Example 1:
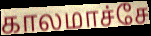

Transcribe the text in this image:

காலமாச்சே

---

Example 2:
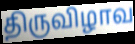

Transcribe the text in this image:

திருவிழாவ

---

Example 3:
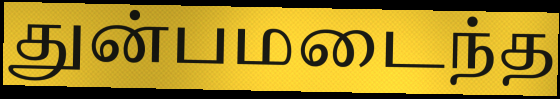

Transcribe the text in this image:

துன்பமடைந்த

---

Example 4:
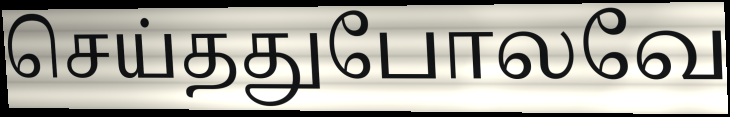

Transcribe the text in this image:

செய்ததுபோலவே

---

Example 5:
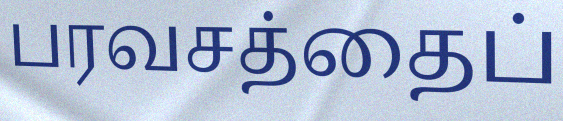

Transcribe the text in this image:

பரவசத்தைப்